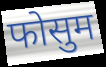
फोसुम